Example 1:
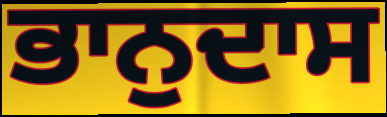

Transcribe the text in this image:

ਭਾਨੁਦਾਸ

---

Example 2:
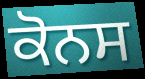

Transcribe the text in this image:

ਕੋਨਸ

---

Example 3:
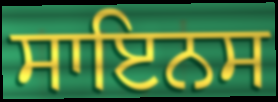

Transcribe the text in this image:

ਸਾਇਨਸ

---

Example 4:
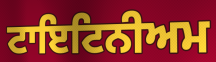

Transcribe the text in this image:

ਟਾਇਟਿਨੀਅਮ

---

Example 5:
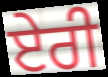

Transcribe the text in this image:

ਏਰੀ